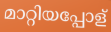
മാറ്റിയപ്പോള്